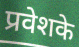
प्रवेशके